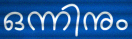
ഒന്നിനും